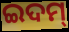
ଇଦମ୍